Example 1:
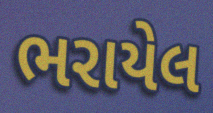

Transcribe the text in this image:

ભરાયેલ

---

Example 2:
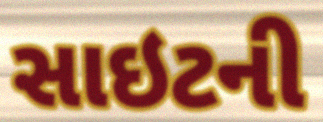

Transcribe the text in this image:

સાઇટની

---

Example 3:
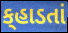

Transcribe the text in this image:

ક્‌હાડતાં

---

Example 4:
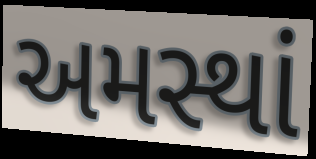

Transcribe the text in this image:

અમસ્થાં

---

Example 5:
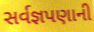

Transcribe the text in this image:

સર્વજ્ઞપણાની